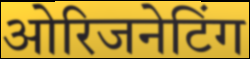
ओरिजनेटिंग